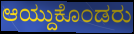
ಆಯ್ದುಕೊಂಡರು